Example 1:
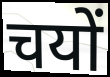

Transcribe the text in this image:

चयों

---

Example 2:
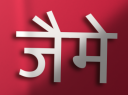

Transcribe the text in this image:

जैमे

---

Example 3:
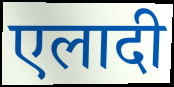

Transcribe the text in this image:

एलादी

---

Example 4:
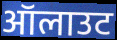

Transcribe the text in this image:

ऑलाउट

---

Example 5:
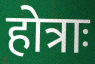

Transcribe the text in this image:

होत्राः